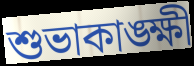
শুভাকাঙ্ক্ষী